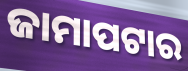
ଜାମାପଟାର